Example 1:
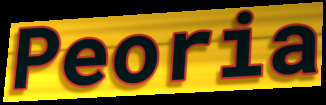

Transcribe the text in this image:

Peoria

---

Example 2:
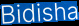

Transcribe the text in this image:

Bidisha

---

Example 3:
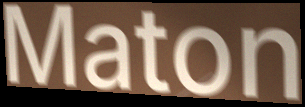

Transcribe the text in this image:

Maton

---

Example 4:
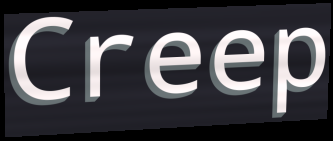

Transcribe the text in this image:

Creep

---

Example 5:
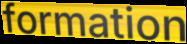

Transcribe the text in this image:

formation